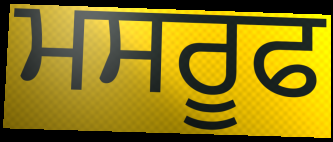
ਮਸਰੂਫ